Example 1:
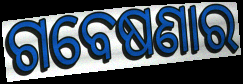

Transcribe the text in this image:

ଗବେଷଣାର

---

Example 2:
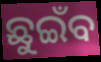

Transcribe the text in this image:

ଛୁଇଁବ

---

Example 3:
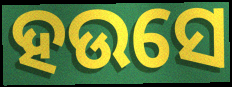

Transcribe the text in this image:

ହଉସେ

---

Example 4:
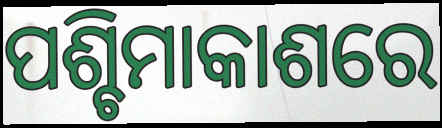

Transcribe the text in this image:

ପଶ୍ଚିମାକାଶରେ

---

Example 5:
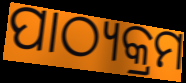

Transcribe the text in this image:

ପାଠ୍ୟକ୍ରମ